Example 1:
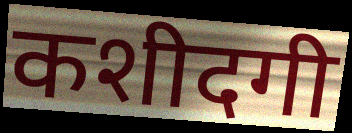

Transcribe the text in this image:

कशीदगी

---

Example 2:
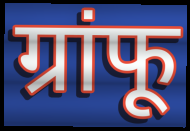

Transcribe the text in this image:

ग्रांफू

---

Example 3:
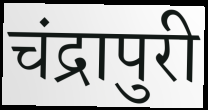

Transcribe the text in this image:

चंद्रापुरी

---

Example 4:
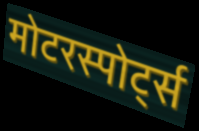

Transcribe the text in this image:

मोटरस्पोर्ट्स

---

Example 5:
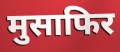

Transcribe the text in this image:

मुसाफिर